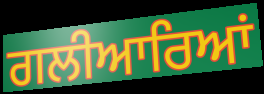
ਗਲੀਆਰਿਆਂ